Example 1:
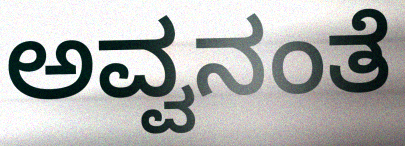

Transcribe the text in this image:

ಅವ್ವನಂತೆ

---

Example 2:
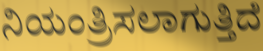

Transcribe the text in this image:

ನಿಯಂತ್ರಿಸಲಾಗುತ್ತಿದೆ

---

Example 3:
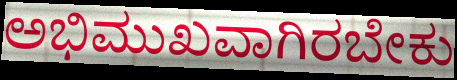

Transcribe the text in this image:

ಅಭಿಮುಖವಾಗಿರಬೇಕು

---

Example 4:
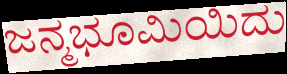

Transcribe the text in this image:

ಜನ್ಮಭೂಮಿಯಿದು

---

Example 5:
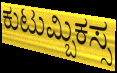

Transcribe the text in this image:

ಕುಟುಮ್ಬಿಕಸ್ಸ